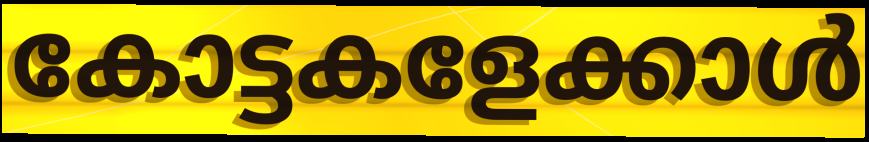
കോട്ടകളേക്കാൾ